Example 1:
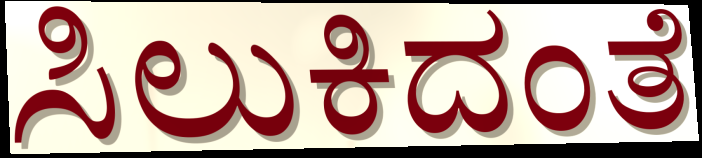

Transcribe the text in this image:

ಸಿಲುಕಿದಂತೆ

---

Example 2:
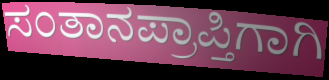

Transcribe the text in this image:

ಸಂತಾನಪ್ರಾಪ್ತಿಗಾಗಿ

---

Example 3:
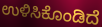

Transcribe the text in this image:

ಉಳಿಸಿಕೊಂಡಿದೆ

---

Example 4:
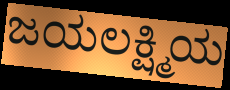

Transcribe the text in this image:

ಜಯಲಕ್ಷ್ಮಿಯ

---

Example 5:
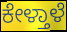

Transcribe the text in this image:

ಕೇಳ್ತಾಳೆ